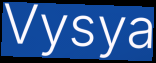
Vysya